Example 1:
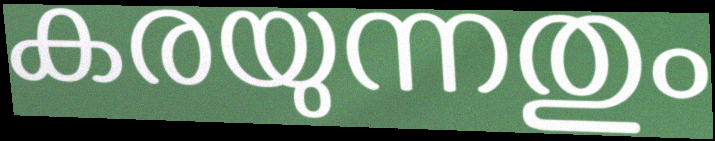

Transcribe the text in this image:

കരയുന്നതും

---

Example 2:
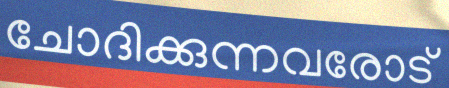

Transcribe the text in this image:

ചോദിക്കുന്നവരോട്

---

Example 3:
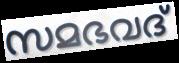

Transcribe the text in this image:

സമഭവദ്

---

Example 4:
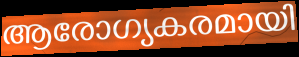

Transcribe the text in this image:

ആരോഗ്യകരമായി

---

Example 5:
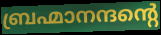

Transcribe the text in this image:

ബ്രഹ്മാനന്ദന്റെ